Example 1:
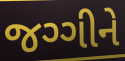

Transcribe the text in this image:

જગ્ગીને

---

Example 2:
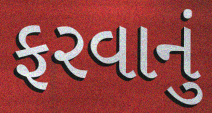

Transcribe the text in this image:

ફરવાનું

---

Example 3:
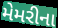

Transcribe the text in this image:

મેમરીના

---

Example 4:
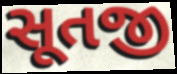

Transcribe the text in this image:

સૂતજી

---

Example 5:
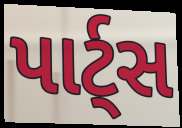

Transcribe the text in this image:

પાર્ટ્સ